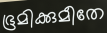
ഭൂമിക്കുമീതേ